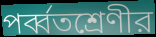
পর্ব্বতশ্রেণীর